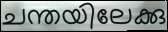
ചന്തയിലേക്കു